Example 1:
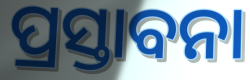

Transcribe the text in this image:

ପ୍ରସ୍ତାବନା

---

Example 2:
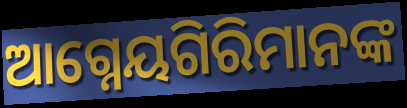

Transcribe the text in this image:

ଆଗ୍ନେୟଗିରିମାନଙ୍କ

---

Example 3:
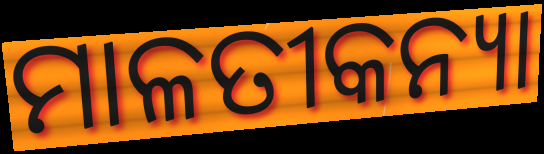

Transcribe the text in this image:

ମାଳତୀକନ୍ୟା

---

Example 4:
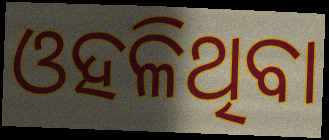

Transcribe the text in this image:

ଓହଳିଥିବା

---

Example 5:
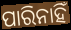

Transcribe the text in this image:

ପାରିନାହିଁ